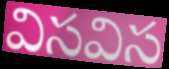
విసవిస